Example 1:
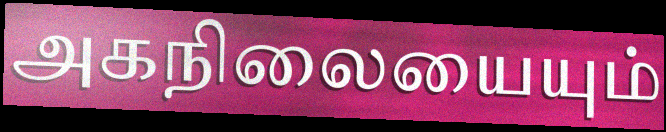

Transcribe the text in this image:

அகநிலையையும்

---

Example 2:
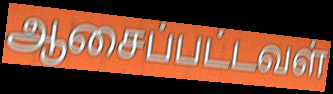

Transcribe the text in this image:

ஆசைப்பட்டவள்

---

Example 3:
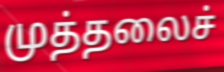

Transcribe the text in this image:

முத்தலைச்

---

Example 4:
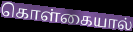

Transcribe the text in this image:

கொள்கையால்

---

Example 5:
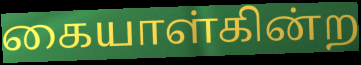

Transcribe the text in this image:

கையாள்கின்ற